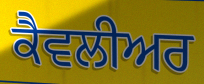
ਕੈਵਲੀਅਰ